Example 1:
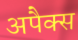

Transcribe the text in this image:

अपैक्स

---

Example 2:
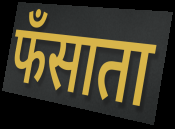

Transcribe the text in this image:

फँसाता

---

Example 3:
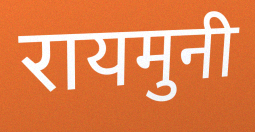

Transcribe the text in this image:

रायमुनी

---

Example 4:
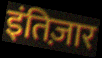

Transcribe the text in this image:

इंतिज़ार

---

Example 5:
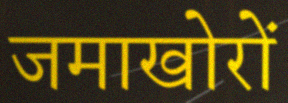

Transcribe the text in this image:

जमाखोरों